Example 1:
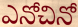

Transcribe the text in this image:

ఎనోచినో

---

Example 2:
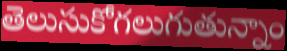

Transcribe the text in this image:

తెలుసుకోగలుగుతున్నాం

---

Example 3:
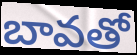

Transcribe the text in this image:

బావతో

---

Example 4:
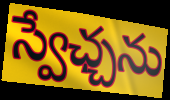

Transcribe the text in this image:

స్వేఛ్చను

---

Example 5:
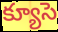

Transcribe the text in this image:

క్యూసె